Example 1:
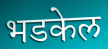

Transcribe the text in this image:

भडकेल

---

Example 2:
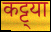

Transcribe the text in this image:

कट्ट्या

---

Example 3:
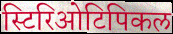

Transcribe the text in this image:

स्टिरिओटिपिकल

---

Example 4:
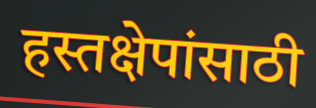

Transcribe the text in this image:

हस्तक्षेपांसाठी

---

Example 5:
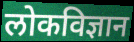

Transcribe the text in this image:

लोकविज्ञान